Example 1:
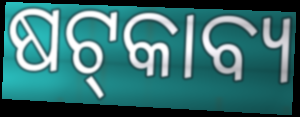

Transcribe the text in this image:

ଷଟ୍‌କାବ୍ୟ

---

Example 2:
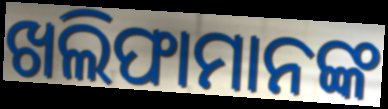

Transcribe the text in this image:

ଖଲିଫାମାନଙ୍କ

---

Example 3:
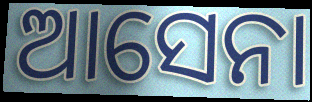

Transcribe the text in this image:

ଆସେନା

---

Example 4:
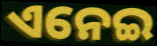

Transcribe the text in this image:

ଏନେଇ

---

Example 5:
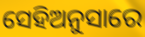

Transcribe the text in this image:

ସେହିଅନୁସାରେ